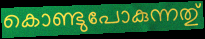
കൊണ്ടുപോകുന്നതു്